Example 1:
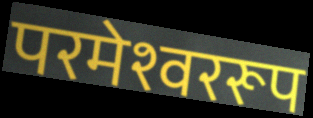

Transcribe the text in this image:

परमेश्वररूप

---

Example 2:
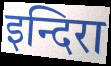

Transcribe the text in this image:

इन्दिरा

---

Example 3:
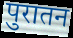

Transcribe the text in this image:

पुरातन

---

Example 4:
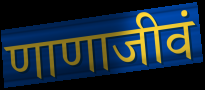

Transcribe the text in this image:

णाणाजीवं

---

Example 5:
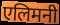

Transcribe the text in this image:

एलिमनी